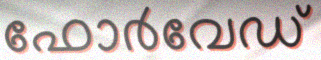
ഫോർവേഡ്